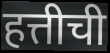
हत्तीची